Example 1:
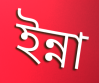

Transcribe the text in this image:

ইন্না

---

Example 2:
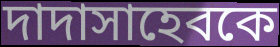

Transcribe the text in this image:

দাদাসাহেবকে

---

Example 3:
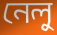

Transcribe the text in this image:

নেলু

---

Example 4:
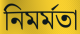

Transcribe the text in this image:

নিমর্মতা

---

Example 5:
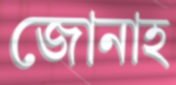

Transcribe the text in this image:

জোনাহ